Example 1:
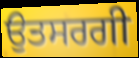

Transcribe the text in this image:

ਉਤਸਰਗੀ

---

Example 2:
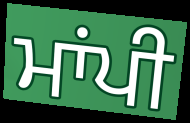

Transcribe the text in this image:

ਮਾਂਪੀ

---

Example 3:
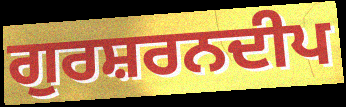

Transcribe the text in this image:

ਗੁਰਸ਼ਰਨਦੀਪ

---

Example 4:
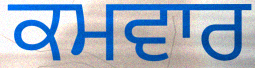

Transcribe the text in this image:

ਕਮਵਾਰ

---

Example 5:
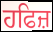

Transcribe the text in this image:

ਹਫਿਜ਼